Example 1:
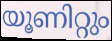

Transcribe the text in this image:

യൂണിറ്റും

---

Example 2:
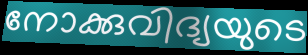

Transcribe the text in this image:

നോക്കുവിദ്യയുടെ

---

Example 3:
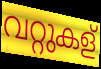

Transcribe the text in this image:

വറ്റുകള്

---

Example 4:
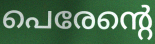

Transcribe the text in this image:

പെരേന്റെ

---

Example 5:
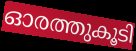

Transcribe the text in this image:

ഓരത്തുകൂടി